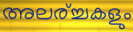
അലര്ച്ചകളും